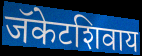
जॅकेटशिवाय